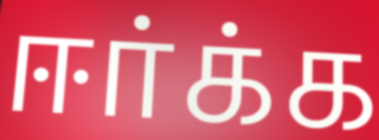
ஈர்க்க